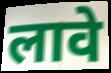
लावे